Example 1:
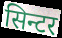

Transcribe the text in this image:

सिन्टर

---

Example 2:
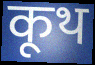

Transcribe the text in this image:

कूथ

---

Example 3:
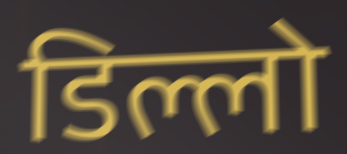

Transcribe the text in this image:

डिल्लो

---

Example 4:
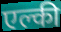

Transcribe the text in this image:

एल्की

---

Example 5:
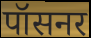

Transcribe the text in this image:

पॉसनर